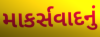
માકર્સવાદનું